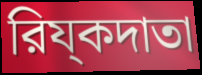
রিয্কদাতা